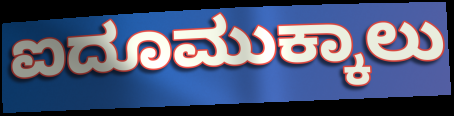
ಐದೂಮುಕ್ಕಾಲು